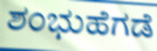
ಶಂಭುಹೆಗಡೆ